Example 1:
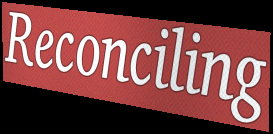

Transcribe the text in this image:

Reconciling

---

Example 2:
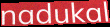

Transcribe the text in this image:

nadukal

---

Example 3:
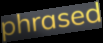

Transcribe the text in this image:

phrased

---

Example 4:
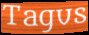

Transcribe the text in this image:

Tagus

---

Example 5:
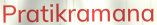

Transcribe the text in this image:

Pratikramana